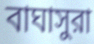
বাঘাসুরা